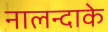
नालन्दाके